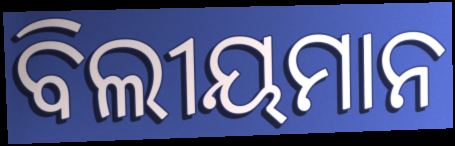
ବିଲୀୟମାନ